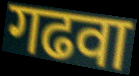
गढवा